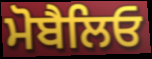
ਮੋਬੈਲਿਓ